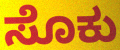
ಸೊಕು